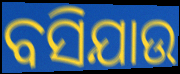
ବସିଯାଉ